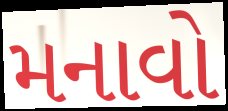
મનાવો